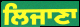
ਲਿਜਾਣਾ